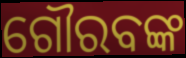
ଗୌରବଙ୍କ